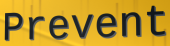
Prevent